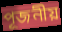
পূজনীয়